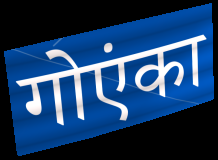
गोएंका